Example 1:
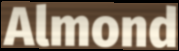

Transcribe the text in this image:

Almond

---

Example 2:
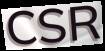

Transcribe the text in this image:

CSR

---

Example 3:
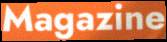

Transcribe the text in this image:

Magazine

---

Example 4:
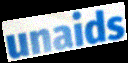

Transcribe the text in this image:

unaids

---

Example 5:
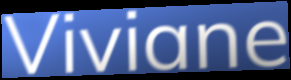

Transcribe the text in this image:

Viviane